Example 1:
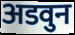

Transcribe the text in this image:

अडवुन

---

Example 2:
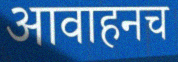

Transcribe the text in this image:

आवाहनच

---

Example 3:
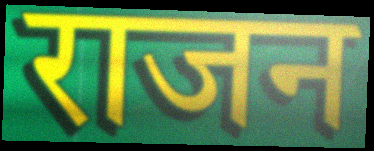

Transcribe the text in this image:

राजन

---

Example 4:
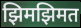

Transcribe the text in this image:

झिमझिमत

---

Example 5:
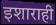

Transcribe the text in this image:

इशाराही